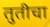
तुतीचा